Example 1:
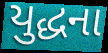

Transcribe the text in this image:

યુદ્ધના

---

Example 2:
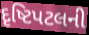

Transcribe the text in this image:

દૃષ્ટિપટલની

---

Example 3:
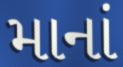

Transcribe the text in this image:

માનાં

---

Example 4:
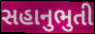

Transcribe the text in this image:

સહાનુભુતી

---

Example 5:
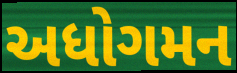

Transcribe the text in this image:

અધોગમન